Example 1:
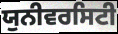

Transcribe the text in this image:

ਯੁਨੀਵਰਸਿਟੀ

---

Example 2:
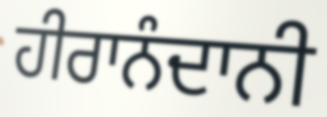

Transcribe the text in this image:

ਹੀਰਾਨੰਦਾਨੀ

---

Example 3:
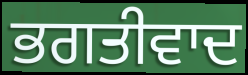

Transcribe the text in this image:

ਭਗਤੀਵਾਦ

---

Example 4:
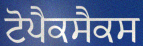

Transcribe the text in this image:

ਟੋਪੈਕਸੈਕਸ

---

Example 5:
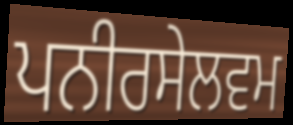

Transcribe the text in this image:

ਪਨੀਰਸੇਲਵਮ